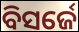
ବିସର୍ଜେ